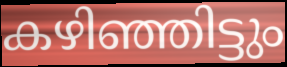
കഴിഞ്ഞിട്ടും